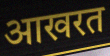
आखरत